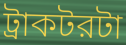
ট্রাকটরটা